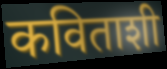
कविताशी